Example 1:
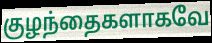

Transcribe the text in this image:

குழந்தைகளாகவே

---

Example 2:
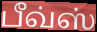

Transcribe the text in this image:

பீவ்ஸ்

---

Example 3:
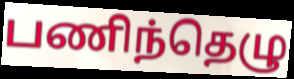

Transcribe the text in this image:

பணிந்தெழு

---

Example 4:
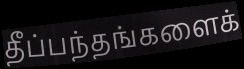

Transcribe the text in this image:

தீப்பந்தங்களைக்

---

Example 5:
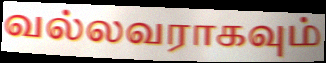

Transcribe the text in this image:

வல்லவராகவும்